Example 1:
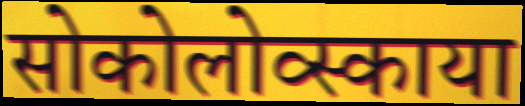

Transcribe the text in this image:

सोकोलोव्स्काया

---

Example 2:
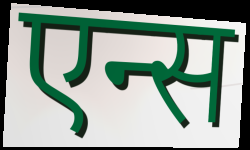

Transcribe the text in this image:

एन्स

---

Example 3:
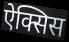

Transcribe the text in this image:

ऐक्सिस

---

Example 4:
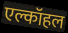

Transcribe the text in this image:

एल्कॉहल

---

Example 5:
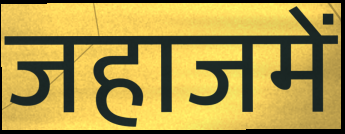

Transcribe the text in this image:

जहाजमें